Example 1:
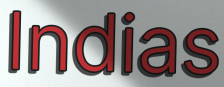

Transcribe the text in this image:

Indias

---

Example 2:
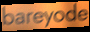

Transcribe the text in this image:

bareyode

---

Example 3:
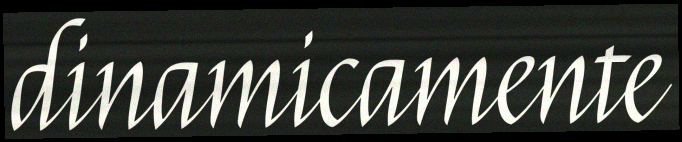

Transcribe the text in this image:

dinamicamente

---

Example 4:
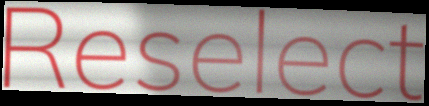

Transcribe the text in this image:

Reselect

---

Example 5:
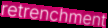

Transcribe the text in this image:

retrenchment